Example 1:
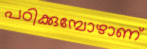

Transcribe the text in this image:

പഠിക്കുമ്പോഴാണ്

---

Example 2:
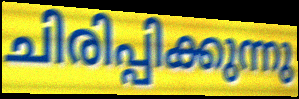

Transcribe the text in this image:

ചിരിപ്പിക്കുന്നു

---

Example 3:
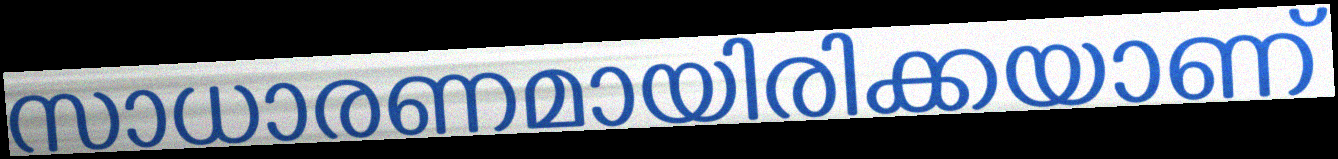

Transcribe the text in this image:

സാധാരണമായിരിക്കയാണ്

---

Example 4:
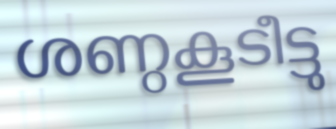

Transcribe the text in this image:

ശണ്ഠകൂടീട്ടു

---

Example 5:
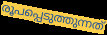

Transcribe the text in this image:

രൂപപ്പെടുത്തുന്നത്